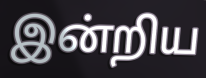
இன்றிய